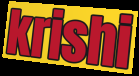
krishi